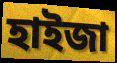
হাইজা